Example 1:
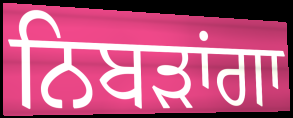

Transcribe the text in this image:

ਨਿਬੜਾਂਗਾ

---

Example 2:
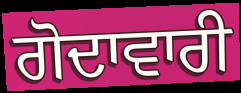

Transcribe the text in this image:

ਗੋਦਾਵਾਰੀ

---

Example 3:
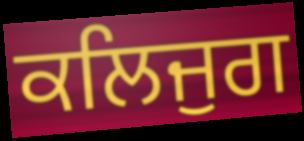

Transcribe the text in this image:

ਕਲਿਜੁਗ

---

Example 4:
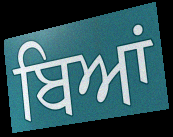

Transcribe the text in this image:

ਬਿਆਂ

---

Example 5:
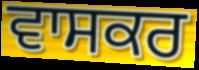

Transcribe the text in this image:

ਵਾਸਕਰ